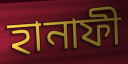
হানাফী